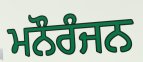
ਮਨੌਰੰਜਨ